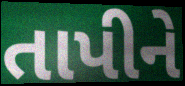
તાપીને